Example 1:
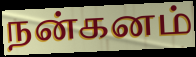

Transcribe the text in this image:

நன்கனம்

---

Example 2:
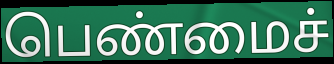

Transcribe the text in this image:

பெண்மைச்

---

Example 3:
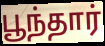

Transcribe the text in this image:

பூந்தார்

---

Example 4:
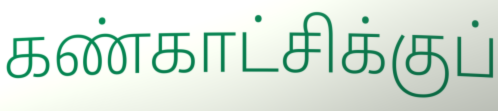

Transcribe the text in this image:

கண்காட்சிக்குப்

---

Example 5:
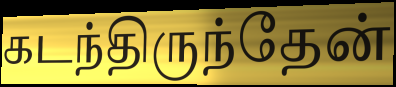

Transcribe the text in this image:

கடந்திருந்தேன்